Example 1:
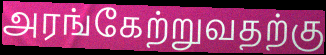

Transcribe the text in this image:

அரங்கேற்றுவதற்கு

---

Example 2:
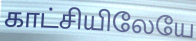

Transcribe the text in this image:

காட்சியிலேயே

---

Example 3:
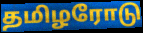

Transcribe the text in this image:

தமிழரோடு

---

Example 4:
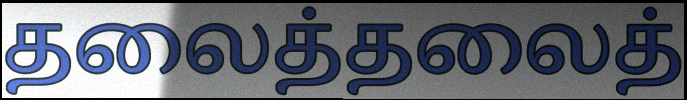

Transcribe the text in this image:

தலைத்தலைத்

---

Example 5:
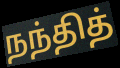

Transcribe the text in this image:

நந்தித்